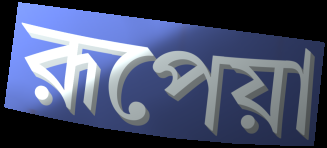
রূপেয়া